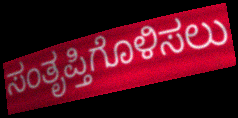
ಸಂತೃಪ್ತಿಗೊಳಿಸಲು